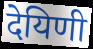
देयिणी